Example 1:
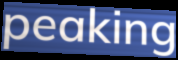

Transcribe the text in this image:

peaking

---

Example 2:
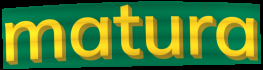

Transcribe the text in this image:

matura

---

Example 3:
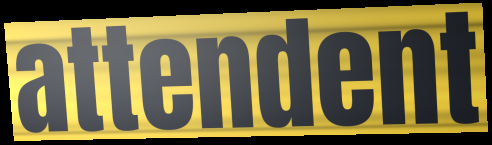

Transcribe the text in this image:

attendent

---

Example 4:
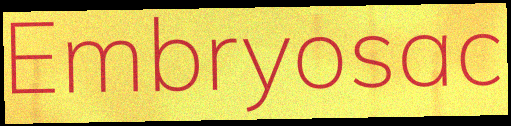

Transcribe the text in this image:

Embryosac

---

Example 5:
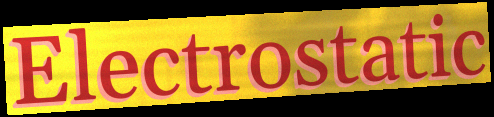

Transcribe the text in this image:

Electrostatic